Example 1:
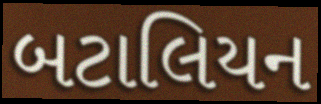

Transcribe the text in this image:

બટાલિયન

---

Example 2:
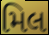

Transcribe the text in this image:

મિલ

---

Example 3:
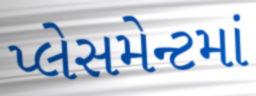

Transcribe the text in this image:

પ્લેસમેન્ટમાં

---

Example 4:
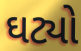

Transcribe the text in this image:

ઘટ્યો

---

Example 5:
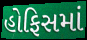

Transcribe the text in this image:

હોફિસમાં